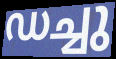
ഡച്ചു